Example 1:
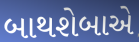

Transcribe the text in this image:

બાથશેબાએ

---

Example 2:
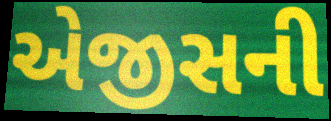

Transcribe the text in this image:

એજીસની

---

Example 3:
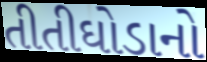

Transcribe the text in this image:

તીતીઘોડાનો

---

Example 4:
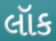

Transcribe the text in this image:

લૉક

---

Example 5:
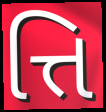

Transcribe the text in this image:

ત્તિ